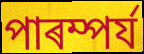
পাৰম্পৰ্য